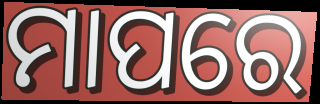
ମାପରେ